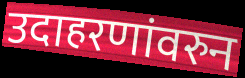
उदाहरणांवरुन